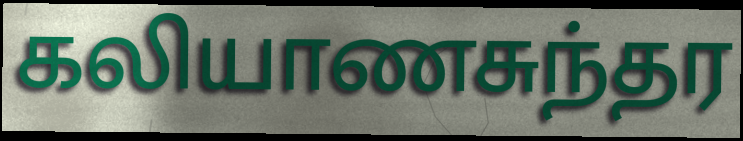
கலியாணசுந்தர